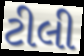
ટીલી